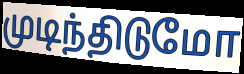
முடிந்திடுமோ